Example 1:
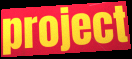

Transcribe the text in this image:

project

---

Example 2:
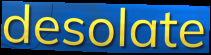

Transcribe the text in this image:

desolate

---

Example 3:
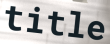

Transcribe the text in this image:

title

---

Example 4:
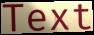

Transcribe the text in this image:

Text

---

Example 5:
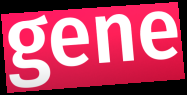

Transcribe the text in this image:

gene